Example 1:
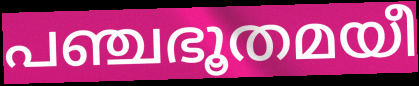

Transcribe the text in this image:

പഞ്ചഭൂതമയീ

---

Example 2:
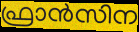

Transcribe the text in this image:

ഫ്രാൻസിന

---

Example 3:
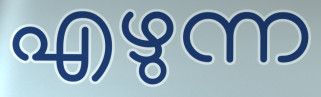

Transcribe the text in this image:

എഴുന്ന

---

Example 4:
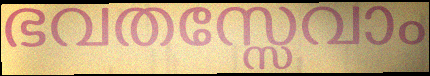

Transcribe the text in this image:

ഭവതസ്സേവാം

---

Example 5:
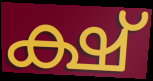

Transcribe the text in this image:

ക്ഷ്